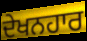
ਦੇਖਨਹਾਰ